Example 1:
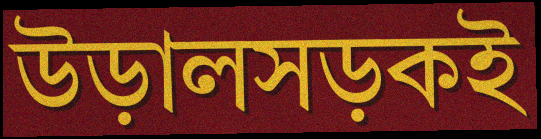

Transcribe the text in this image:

উড়ালসড়কই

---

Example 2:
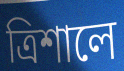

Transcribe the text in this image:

ত্রিশালে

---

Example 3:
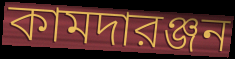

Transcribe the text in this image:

কামদারঞ্জন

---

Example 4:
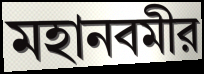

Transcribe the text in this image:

মহানবমীর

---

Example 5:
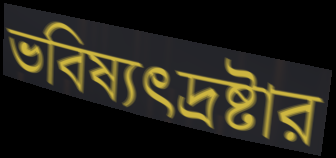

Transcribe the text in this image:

ভবিষ্যৎদ্রষ্টার